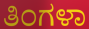
ತಿಂಗಳಾ